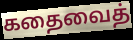
கதைவைத்